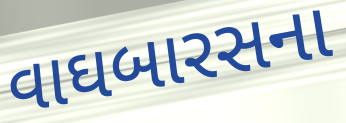
વાઘબારસના